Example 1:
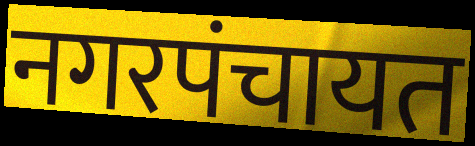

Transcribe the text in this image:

नगरपंचायत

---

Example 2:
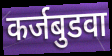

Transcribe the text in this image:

कर्जबुडवा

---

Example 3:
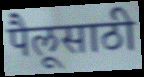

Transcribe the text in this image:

पैलूसाठी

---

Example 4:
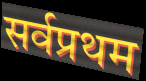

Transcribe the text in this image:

सर्वप्रथम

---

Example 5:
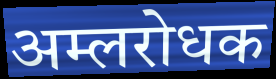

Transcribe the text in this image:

अम्लरोधक